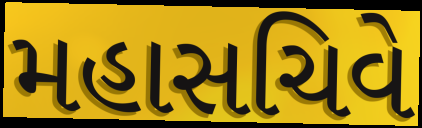
મહાસચિવે